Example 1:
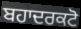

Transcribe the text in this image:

ਬਹਾਦਰਕਟੋ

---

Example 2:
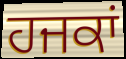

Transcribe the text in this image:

ਹਜਕਾਂ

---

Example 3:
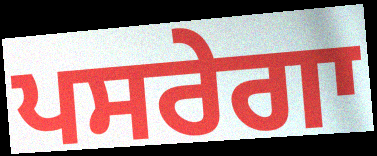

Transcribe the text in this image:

ਪਸਰੇਗਾ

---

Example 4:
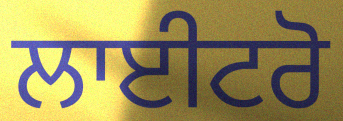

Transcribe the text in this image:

ਲਾਈਟਰੋ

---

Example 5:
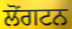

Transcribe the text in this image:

ਲੋਂਗਟਨ